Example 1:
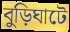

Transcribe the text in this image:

বুড়িঘাটে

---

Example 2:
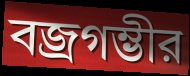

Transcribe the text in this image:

বজ্রগম্ভীর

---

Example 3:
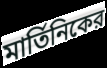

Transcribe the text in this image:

মার্তিনিকের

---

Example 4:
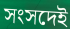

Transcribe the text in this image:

সংসদেই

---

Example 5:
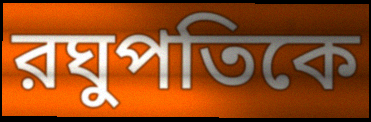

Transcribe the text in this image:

রঘুপতিকে